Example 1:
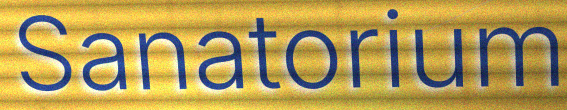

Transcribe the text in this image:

Sanatorium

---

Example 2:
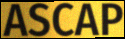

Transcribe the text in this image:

ASCAP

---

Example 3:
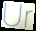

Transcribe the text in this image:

Ur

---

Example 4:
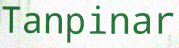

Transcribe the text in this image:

Tanpinar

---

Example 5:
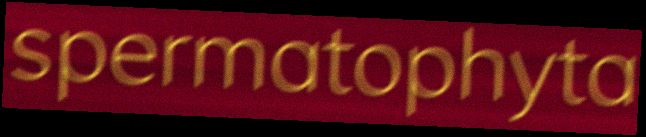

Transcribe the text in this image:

spermatophyta